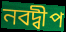
নবদ্বীপ